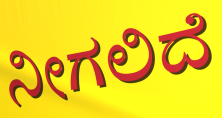
ನೀಗಲಿದೆ